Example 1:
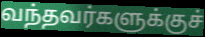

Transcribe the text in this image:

வந்தவர்களுக்குச்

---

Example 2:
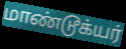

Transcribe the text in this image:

மாண்டூக்யர்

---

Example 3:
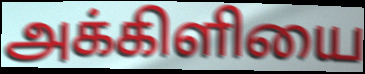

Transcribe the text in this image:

அக்கிளியை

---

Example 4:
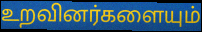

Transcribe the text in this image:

உறவினர்களையும்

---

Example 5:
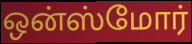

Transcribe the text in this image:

ஒன்ஸ்மோர்